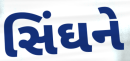
સિંઘને